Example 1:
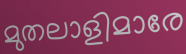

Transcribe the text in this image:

മുതലാളിമാരേ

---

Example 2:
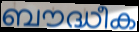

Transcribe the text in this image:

ബൗദ്ധീക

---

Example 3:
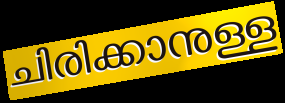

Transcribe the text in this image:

ചിരിക്കാനുള്ള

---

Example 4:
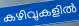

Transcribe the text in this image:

കഴിവുകളിൽ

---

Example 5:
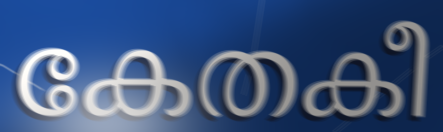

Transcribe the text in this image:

കേതകീ